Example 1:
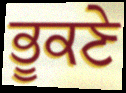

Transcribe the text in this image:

ਭੂਕਣੇ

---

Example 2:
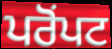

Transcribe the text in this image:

ਪਰੋਂਪਟ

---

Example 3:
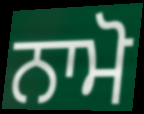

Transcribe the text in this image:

ਨਾਮੋ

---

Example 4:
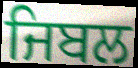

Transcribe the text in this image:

ਜਿਬਲ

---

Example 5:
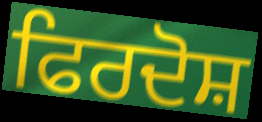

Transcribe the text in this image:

ਫਿਰਦੋਸ਼